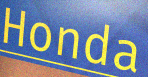
Honda